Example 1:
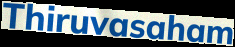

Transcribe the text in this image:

Thiruvasaham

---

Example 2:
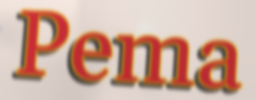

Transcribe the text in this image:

Pema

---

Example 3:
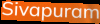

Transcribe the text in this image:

Sivapuram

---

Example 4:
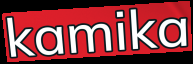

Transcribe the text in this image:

kamika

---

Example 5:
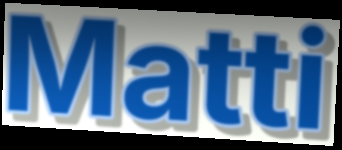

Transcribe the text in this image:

Matti